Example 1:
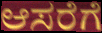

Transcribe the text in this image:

ಆಸರೆಗೆ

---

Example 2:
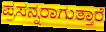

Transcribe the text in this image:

ಪ್ರಸನ್ನರಾಗುತ್ತಾರೆ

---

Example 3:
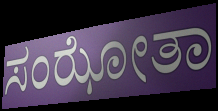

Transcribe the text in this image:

ಸಂಝೋತಾ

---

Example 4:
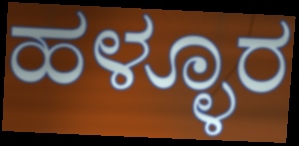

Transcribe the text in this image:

ಹಳ್ಳೂರ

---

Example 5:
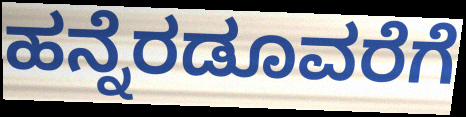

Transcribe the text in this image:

ಹನ್ನೆರಡೂವರೆಗೆ